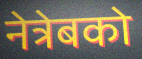
नेत्रेबको